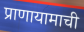
प्राणायामाची